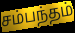
சம்பந்தம்